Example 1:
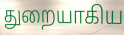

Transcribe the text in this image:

துறையாகிய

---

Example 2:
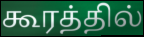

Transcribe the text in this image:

கூரத்தில்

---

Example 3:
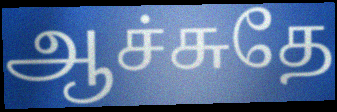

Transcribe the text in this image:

ஆச்சுதே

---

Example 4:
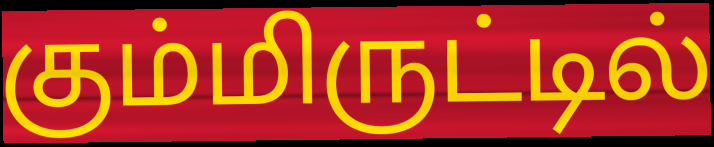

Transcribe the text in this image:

கும்மிருட்டில்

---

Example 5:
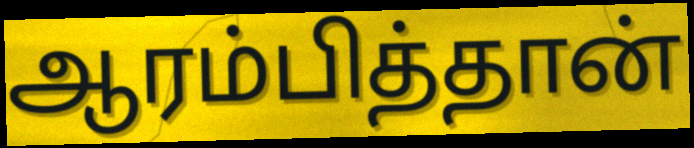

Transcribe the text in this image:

ஆரம்பித்தான்